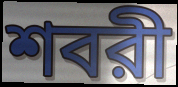
শবরী